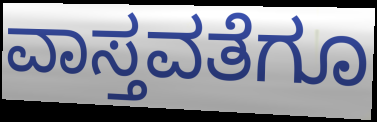
ವಾಸ್ತವತೆಗೂ